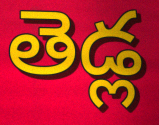
తెడ్ల